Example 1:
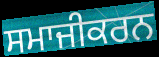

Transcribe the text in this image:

ਸਮਾਜੀਕਰਨ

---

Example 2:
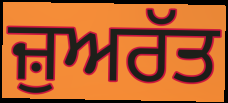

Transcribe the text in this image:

ਜ਼ੁਅਰੱਤ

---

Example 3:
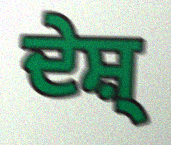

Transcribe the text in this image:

ਦੇਸ਼੍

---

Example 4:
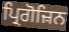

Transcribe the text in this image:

ਪ੍ਰਿਗੋਜ਼ਿਨ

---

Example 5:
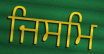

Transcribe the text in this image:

ਜਿਸਮਿ